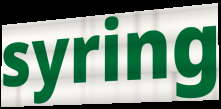
syring